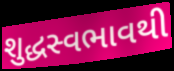
શુદ્ધસ્વભાવથી